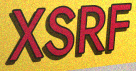
XSRF